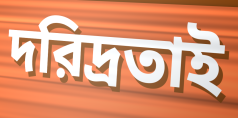
দরিদ্রতাই